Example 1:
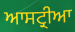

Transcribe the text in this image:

ਆਸਟ੍ਰੀਆ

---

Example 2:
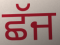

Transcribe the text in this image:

ਛੱਜ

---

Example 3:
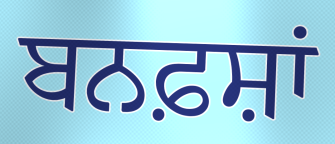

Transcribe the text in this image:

ਬਨਫ਼ਸ਼ਾਂ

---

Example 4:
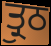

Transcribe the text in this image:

ਤ੍ਰੁਠ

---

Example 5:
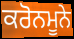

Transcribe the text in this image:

ਕਰੋਨਮੂਨੇ